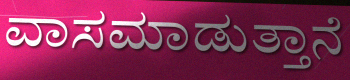
ವಾಸಮಾಡುತ್ತಾನೆ